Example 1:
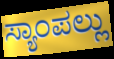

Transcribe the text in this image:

ಸ್ಯಾಂಪಲ್ಲು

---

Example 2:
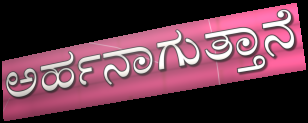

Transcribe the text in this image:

ಅರ್ಹನಾಗುತ್ತಾನೆ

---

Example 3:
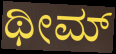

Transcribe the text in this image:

ಥೀಮ್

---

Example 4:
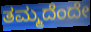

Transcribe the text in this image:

ತಮ್ಮದೆಂದೇ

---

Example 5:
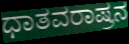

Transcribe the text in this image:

ಧಾತವರಾಷ್ರನ